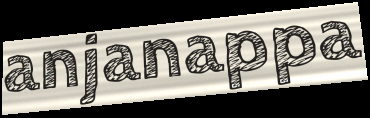
anjanappa